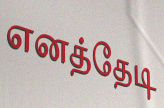
எனத்தேடி